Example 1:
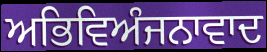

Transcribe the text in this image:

ਅਭਿਵਿਅੰਜਨਾਵਾਦ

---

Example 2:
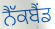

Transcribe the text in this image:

ਨੈੱਕਬੈਂਡ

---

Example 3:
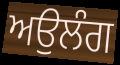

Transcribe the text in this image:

ਅਉਲੰਗ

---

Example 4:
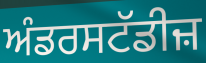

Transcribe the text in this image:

ਅੰਡਰਸਟੱਡੀਜ਼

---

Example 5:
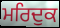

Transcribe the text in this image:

ਮਰਿਦੁਕ